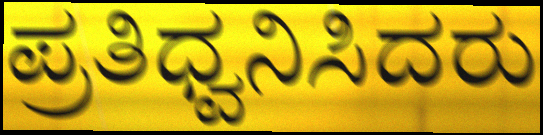
ಪ್ರತಿಧ್ವನಿಸಿದರು